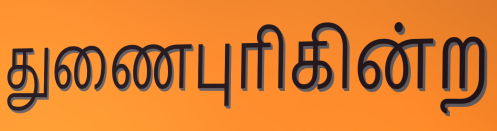
துணைபுரிகின்ற